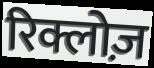
रिक्लोज़